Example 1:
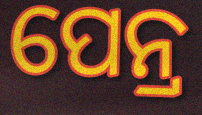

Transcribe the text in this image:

ପେନ୍ର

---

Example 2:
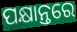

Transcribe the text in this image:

ପକ୍ଷାନ୍ତରେ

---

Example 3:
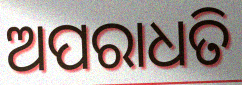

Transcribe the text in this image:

ଅପରାଧତି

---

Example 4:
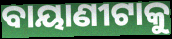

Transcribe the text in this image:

ବାୟାଣୀଟାକୁ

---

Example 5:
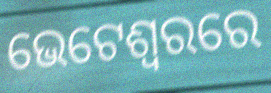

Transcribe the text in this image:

ଭେଟେଶ୍ୱରରେ